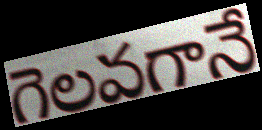
గెలవగానే